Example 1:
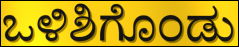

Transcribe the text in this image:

ಒಳಿಶಿಗೊಂಡು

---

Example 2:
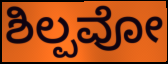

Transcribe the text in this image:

ಶಿಲ್ಪವೋ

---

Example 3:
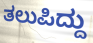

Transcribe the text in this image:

ತಲುಪಿದ್ದು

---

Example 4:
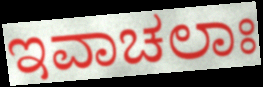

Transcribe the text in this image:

ಇವಾಚಲಾಃ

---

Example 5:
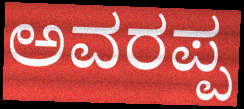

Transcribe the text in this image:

ಅವರಪ್ಪ